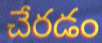
చేరడం